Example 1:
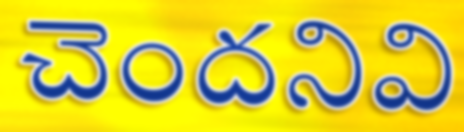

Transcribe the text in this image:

చెందనివి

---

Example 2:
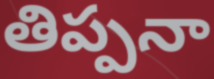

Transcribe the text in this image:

తిప్పనా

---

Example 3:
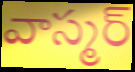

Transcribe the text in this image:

వాస్మర్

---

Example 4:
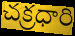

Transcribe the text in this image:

చక్రధారి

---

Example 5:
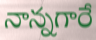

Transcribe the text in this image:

నాన్నగారే